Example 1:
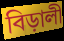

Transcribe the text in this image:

বিড়ালী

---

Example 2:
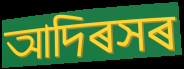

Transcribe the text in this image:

আদিৰসৰ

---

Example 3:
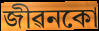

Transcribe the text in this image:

জীৱনকো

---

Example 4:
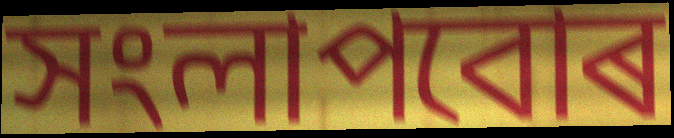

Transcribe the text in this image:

সংলাপবোৰ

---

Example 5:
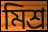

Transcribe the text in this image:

মিশ্ৰ